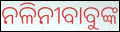
ନଳିନୀବାବୁଙ୍କ